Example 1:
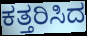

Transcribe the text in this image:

ಕತ್ತರಿಸಿದ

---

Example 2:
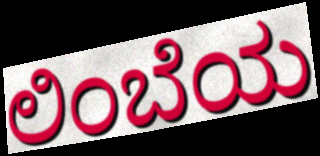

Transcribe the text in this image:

ಲಿಂಬೆಯ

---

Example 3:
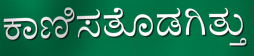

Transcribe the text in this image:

ಕಾಣಿಸತೊಡಗಿತ್ತು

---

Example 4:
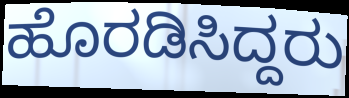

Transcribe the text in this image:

ಹೊರಡಿಸಿದ್ದರು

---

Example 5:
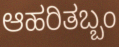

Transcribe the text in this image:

ಆಹರಿತಬ್ಬಂ